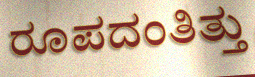
ರೂಪದಂತಿತ್ತು